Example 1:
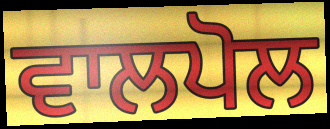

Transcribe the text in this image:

ਵਾਲਪੋਲ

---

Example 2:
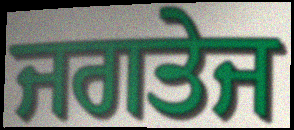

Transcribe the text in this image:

ਜਗਤੇਜ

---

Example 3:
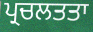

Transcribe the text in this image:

ਪ੍ਰਚਲਤਤਾ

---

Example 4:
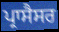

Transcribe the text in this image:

ਪ੍ਰਾਸੈਸਰ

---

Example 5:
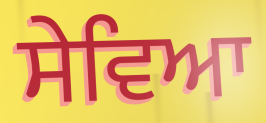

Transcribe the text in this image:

ਸੇਵਿਆ